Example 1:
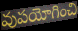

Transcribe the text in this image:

వుపయోగించి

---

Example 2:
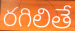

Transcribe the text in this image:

రగిలితే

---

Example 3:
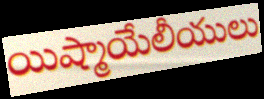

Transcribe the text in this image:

యిష్మాయేలీయులు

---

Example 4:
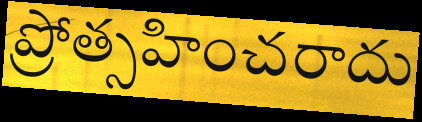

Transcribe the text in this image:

ప్రోత్సహించరాదు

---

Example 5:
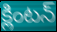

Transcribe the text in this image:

క్లింటన్